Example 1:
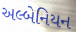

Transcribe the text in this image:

અલ્બેનિયન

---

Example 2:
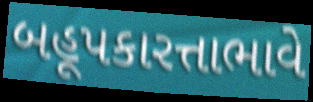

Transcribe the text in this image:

બહૂપકારત્તાભાવે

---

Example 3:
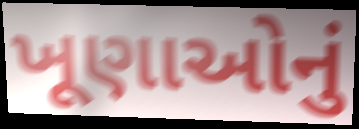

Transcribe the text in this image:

ખૂણાઓનું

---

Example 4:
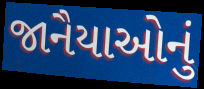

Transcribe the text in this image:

જાનૈયાઓનું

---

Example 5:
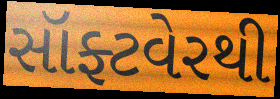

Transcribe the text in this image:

સૉફ્ટવેરથી